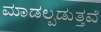
ಮಾಡಲ್ಪಡುತ್ತವೆ